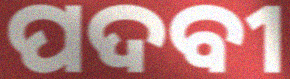
ପଦବୀ